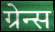
ग्रेन्स